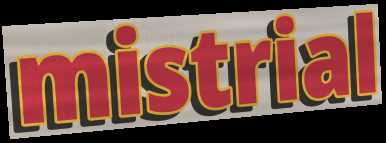
mistrial